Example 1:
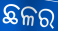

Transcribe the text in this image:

ଛଳର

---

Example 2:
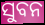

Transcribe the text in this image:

ସୁବନ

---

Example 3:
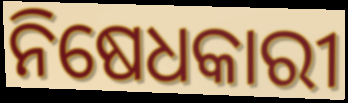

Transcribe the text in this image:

ନିଷେଧକାରୀ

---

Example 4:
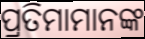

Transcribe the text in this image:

ପ୍ରତିମାମାନଙ୍କ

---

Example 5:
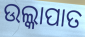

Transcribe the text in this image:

ଉଲ୍କାପାତ